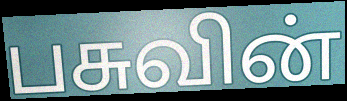
பசுவின்